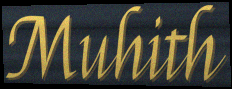
Muhith